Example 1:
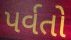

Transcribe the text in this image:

પર્વતો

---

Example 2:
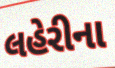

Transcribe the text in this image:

લહેરીના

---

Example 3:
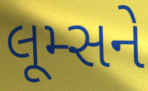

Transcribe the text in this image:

લૂમ્સને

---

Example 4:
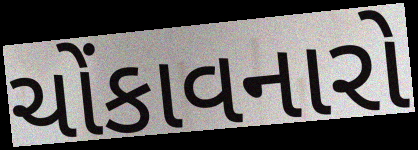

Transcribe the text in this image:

ચોંકાવનારો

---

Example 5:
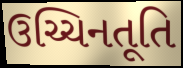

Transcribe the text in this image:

ઉચ્ચિનતૂતિ